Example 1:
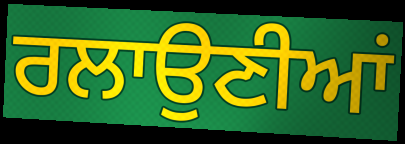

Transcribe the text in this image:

ਰਲਾਉਣੀਆਂ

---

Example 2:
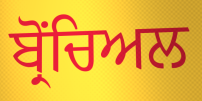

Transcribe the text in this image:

ਬ੍ਰੋਂਚਿਅਲ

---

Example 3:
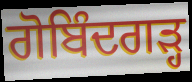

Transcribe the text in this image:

ਗੋਬਿੰਦਗੜ੍ਹ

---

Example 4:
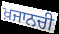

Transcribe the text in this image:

ਖ਼ਜਾਨਚੀ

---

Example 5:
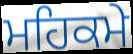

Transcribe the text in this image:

ਮਹਿਕਮੇ